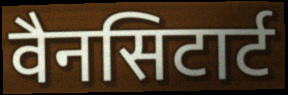
वैनसिटार्ट